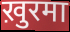
ख़ुरमा